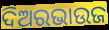
ଦିଅରଭାଉଜ